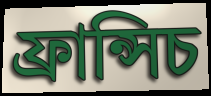
ফ্ৰান্সিচ